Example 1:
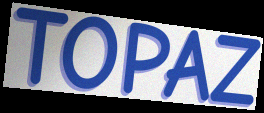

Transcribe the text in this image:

TOPAZ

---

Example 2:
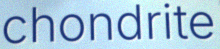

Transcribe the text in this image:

chondrite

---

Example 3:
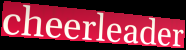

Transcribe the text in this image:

cheerleader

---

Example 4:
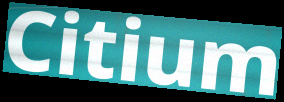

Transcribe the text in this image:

Citium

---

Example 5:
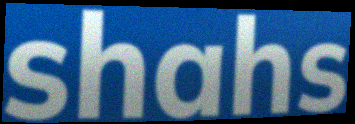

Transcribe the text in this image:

shahs